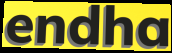
endha